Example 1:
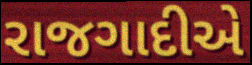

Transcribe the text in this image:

રાજગાદીએ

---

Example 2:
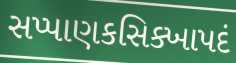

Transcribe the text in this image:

સપ્પાણકસિક્ખાપદં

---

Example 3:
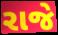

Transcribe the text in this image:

રાજે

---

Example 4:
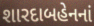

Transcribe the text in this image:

શારદાબહેનનાં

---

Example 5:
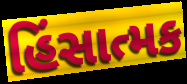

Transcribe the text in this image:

હિંસાત્મક